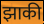
झाकी